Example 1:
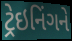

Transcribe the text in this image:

ટ્રેઇનિંગને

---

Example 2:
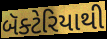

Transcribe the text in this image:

બૅક્ટેરિયાથી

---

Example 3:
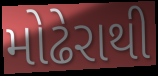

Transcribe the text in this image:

મોઢેરાથી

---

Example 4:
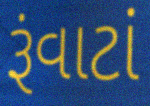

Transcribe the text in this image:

રૂંવાટાં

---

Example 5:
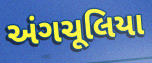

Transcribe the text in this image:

અંગચૂલિયા